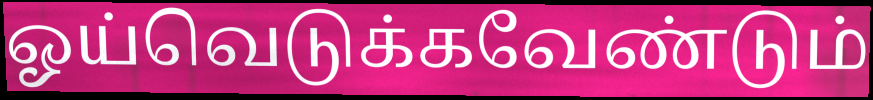
ஓய்வெடுக்கவேண்டும்